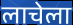
लाचेला